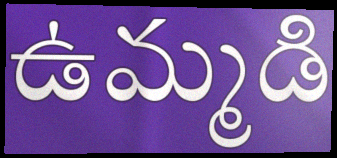
ఉమ్మడి